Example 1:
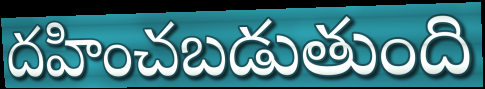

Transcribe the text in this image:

దహించబడుతుంది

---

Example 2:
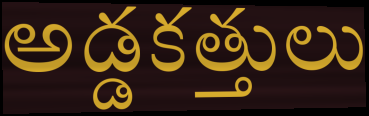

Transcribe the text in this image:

అడ్డకత్తులు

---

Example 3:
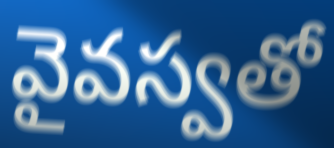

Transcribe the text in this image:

వైవస్వతో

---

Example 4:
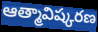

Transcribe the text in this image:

ఆత్మావిష్కరణ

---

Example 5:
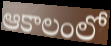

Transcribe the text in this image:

ఆకాలంలో